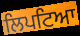
ਲਿਪਟਿਆ